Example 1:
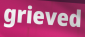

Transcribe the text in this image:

grieved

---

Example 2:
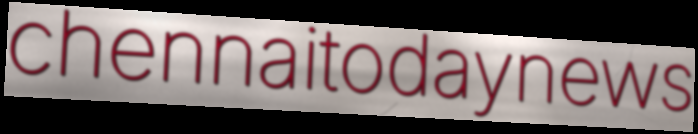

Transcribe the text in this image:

chennaitodaynews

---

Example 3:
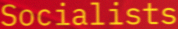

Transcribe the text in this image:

Socialists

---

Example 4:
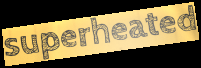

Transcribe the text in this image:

superheated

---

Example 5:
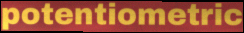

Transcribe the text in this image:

potentiometric